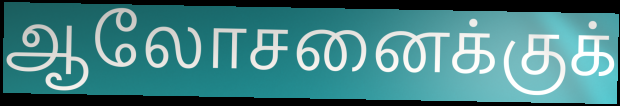
ஆலோசனைக்குக்